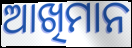
ଆଖିମାନ